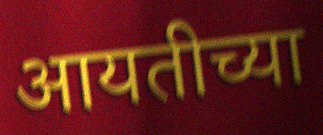
आयतीच्या